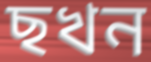
ছখন